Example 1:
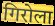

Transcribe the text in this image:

गिरोला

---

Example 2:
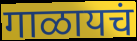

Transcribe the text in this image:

गाळायचं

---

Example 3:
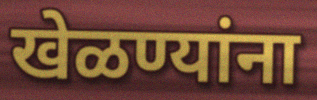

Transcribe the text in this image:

खेळण्यांना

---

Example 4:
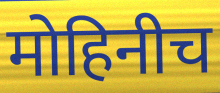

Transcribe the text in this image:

मोहिनीच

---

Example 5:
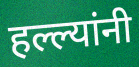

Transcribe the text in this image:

हल्ल्यांनी